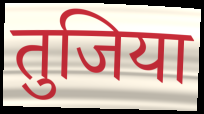
तुजिया